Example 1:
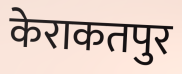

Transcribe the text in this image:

केराकतपुर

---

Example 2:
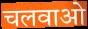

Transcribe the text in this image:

चलवाओ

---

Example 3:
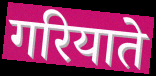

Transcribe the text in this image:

गरियाते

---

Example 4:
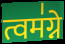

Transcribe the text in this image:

त्वम॑ग्ने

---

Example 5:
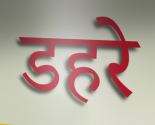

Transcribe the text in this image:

डहरे